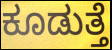
ಕೂಡುತ್ತೆ